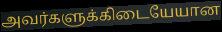
அவர்களுக்கிடையேயான